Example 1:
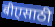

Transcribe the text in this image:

बीएसाठी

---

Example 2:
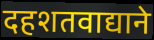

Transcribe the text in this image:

दहशतवाद्याने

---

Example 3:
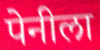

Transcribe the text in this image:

पेनीला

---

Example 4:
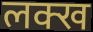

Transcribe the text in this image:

लक्ख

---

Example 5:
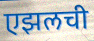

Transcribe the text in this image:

एझलची